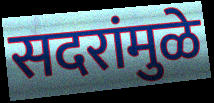
सदरांमुळे